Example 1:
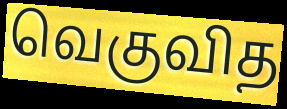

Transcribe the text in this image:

வெகுவித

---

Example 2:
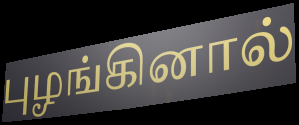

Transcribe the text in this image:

புழங்கினால்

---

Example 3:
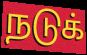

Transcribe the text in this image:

நடுக்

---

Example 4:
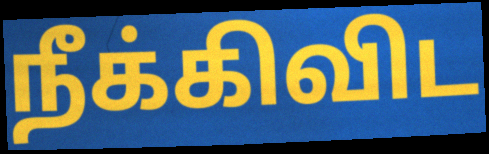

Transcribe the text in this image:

நீக்கிவிட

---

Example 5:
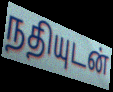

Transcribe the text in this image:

நதியுடன்